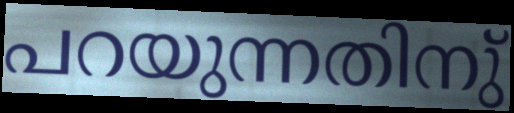
പറയുന്നതിനു്